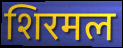
शिरमल